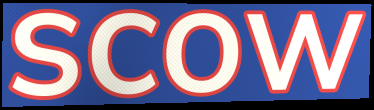
scow